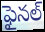
ఫైనల్